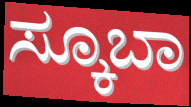
ಸ್ಕೂಬಾ